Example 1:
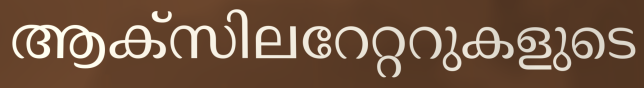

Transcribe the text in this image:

ആക്സിലറേറ്ററുകളുടെ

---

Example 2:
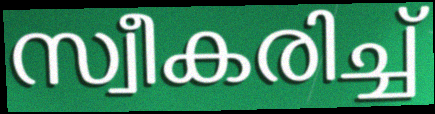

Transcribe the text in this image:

സ്വീകരിച്ച്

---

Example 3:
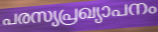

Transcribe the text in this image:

പരസ്യപ്രഖ്യാപനം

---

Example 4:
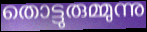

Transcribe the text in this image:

തൊട്ടുരുമ്മുന്നു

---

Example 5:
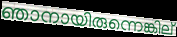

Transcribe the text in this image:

ഞാനായിരുന്നെങ്കില്